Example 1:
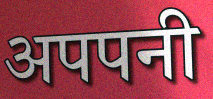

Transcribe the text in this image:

अपपनी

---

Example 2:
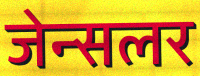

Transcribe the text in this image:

जेन्सलर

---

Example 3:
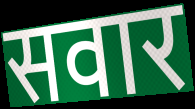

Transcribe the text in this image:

सवार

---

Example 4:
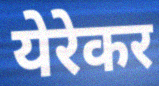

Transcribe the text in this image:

येरेकर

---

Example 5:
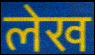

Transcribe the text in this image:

लेख